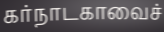
கர்நாடகாவைச்